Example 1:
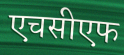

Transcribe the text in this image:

एचसीएफ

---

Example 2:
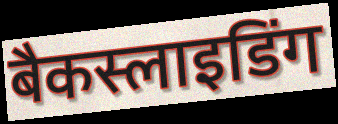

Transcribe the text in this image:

बैकस्लाइडिंग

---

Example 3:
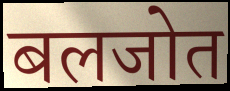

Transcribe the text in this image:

बलजोत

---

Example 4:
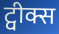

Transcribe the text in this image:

ट्वीक्स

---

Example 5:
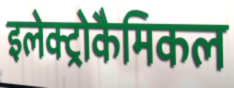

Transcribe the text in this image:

इलेक्ट्रोकैमिकल